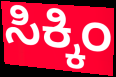
ಸಿಕ್ಕಿಂ